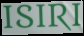
ISIRI